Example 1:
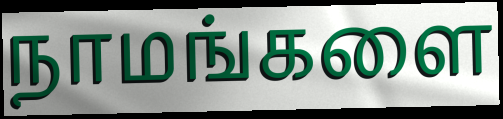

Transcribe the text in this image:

நாமங்களை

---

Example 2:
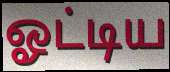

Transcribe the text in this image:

ஓட்டிய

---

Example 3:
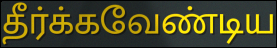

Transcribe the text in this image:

தீர்க்கவேண்டிய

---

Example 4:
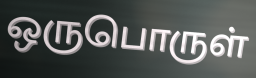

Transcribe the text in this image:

ஒருபொருள்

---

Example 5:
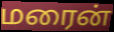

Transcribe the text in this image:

மரைன்